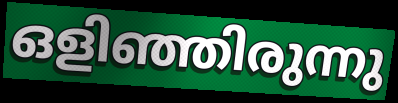
ഒളിഞ്ഞിരുന്നു